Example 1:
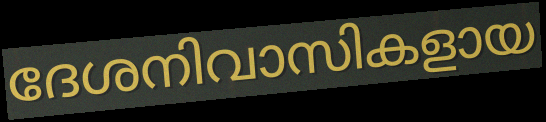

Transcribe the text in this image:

ദേശനിവാസികളായ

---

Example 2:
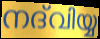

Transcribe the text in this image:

നദ്‌വിയ്യ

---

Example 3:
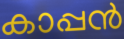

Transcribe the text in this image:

കാപ്പൻ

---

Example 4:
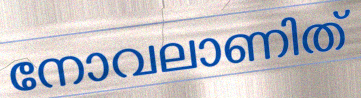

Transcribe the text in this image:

നോവലാണിത്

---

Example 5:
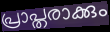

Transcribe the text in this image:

പ്രാപ്തരാക്കും